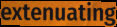
extenuating